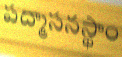
పద్మాసనస్థాం